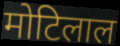
मोटिलाल